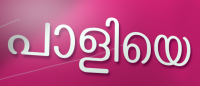
പാളിയെ